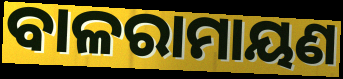
ବାଳରାମାୟଣ